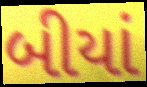
બીયાં